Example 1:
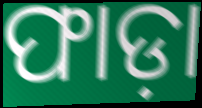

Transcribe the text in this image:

ଫାଡ଼ା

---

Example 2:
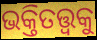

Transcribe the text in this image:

ଭକ୍ତିତତ୍ତ୍ୱକୁ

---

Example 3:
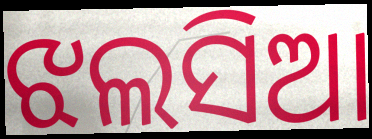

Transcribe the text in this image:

ଝଲସିଆ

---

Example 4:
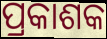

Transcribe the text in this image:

ପ୍ରକାଶକ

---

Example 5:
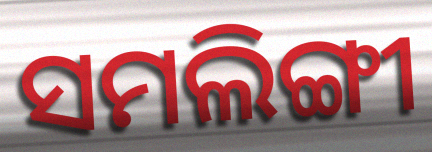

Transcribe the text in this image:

ସମଲିଙ୍ଗୀ